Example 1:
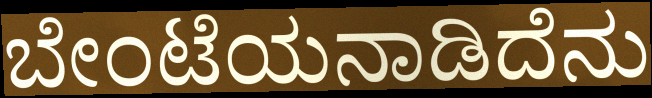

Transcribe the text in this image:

ಬೇಂಟೆಯನಾಡಿದೆನು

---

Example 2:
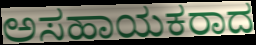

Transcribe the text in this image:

ಅಸಹಾಯಕರಾದ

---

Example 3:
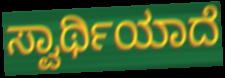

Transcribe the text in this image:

ಸ್ವಾರ್ಥಿಯಾದೆ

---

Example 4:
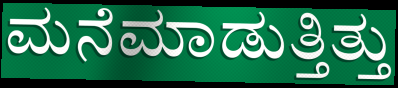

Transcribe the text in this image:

ಮನೆಮಾಡುತ್ತಿತ್ತು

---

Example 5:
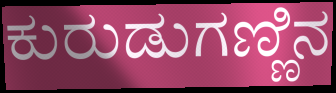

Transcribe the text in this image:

ಕುರುಡುಗಣ್ಣಿನ